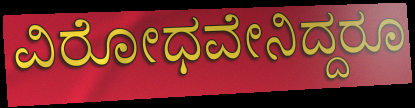
ವಿರೋಧವೇನಿದ್ದರೂ